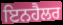
ਇਨਹੈਲਰ